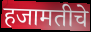
हजामतीचे